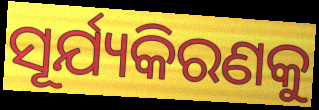
ସୂର୍ଯ୍ୟକିରଣକୁ